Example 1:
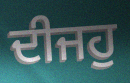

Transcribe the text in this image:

ਦੀਜਹੁ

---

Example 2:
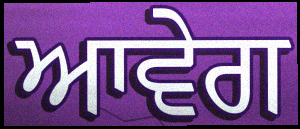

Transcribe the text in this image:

ਆਵੇਗ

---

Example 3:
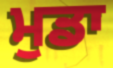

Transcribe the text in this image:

ਮੁਡਾ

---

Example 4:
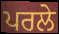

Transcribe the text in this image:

ਪਰਲੇ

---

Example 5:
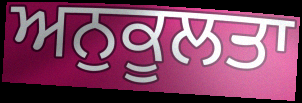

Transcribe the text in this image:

ਅਨੁਕੂਲਤਾ